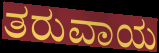
ತರುವಾಯ